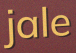
jale